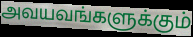
அவயவங்களுக்கும்